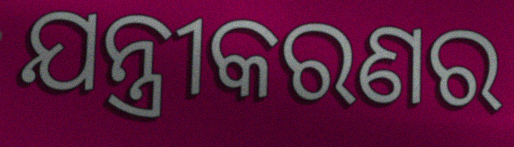
ଯନ୍ତ୍ରୀକରଣର